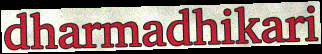
dharmadhikari